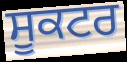
ਸੂਕਟਰ